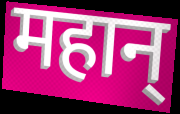
महान्